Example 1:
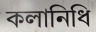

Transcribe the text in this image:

কলানিধি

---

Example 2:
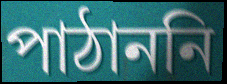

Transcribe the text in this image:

পাঠাননি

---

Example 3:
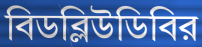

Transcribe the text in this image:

বিডব্লিউডিবির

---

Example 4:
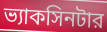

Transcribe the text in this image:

ভ্যাকসিনটার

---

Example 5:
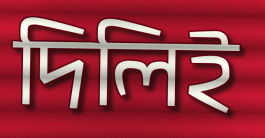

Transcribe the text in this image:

দিলিই